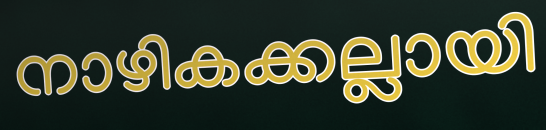
നാഴികക്കല്ലായി